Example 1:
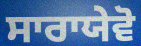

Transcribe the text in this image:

ਸਾਰਾਯੇਵੋ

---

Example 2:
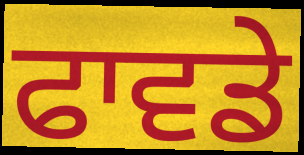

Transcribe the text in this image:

ਫਾਵਡੇ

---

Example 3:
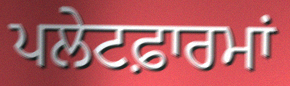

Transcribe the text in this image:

ਪਲੇਟਫ਼ਾਰਮਾਂ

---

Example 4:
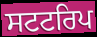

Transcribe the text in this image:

ਸਟਟਰਿਪ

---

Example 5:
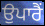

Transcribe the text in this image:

ਉਪਾਰੈਂ